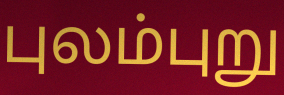
புலம்புறு